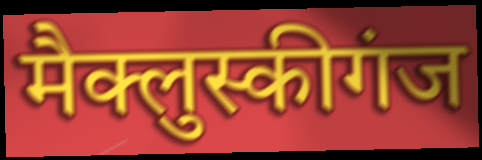
मैक्लुस्कीगंज